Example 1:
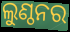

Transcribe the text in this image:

ଲୁଣ୍ଠନର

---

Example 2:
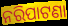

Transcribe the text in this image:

ନରିପାଟଣା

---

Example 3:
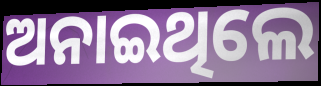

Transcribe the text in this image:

ଅନାଇଥିଲେ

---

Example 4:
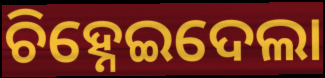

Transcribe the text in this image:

ଚିହ୍ନେଇଦେଲା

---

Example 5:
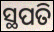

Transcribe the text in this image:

ସ୍ଥପତି